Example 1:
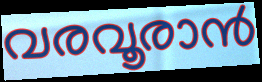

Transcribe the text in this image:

വരവൂരാൻ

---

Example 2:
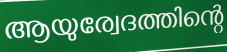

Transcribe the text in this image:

ആയുര്വേദത്തിന്റെ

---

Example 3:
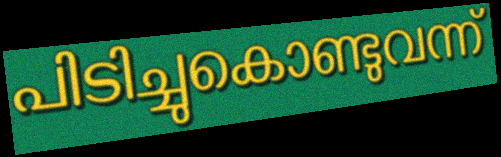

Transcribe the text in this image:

പിടിച്ചുകൊണ്ടുവന്ന്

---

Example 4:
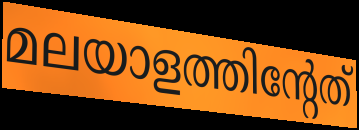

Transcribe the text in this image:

മലയാളത്തിന്റേത്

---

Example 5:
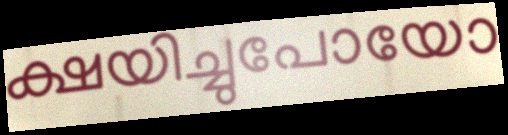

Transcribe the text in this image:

ക്ഷയിച്ചുപോയോ